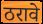
ठरावे